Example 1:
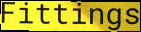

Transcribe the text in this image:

Fittings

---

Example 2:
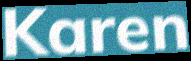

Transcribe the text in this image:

Karen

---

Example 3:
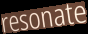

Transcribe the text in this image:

resonate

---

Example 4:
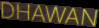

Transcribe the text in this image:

DHAWAN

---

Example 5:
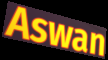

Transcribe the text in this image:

Aswan